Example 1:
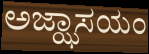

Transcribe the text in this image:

ಅಜ್ಝಾಸಯಂ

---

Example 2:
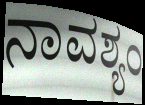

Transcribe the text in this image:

ನಾವಶ್ಯಂ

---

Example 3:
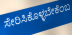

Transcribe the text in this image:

ಸೇರಿಸಿಕೊಳ್ಳಬೇಕೆಂಬ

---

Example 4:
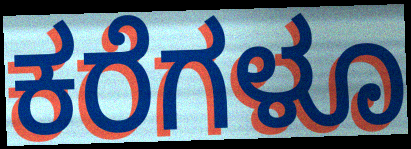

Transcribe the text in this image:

ಕರೆಗಳೂ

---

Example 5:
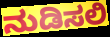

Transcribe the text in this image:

ನುಡಿಸಲಿ